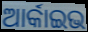
ଆର୍କାଇଭ